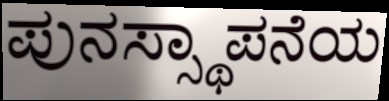
ಪುನಸ್ಸ್ಥಾಪನೆಯ